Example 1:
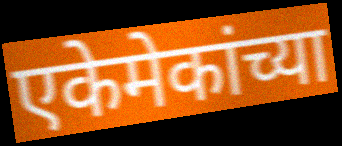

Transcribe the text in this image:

एकेमेकांच्या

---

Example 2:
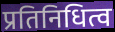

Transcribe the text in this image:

प्रतिनिधित्व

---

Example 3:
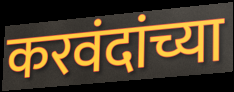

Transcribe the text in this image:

करवंदांच्या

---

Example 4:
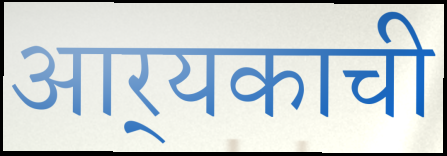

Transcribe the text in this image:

आर्यकाची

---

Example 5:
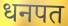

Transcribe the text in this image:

धनपत